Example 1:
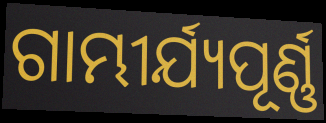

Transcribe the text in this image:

ଗାମ୍ଭୀର୍ଯ୍ୟପୂର୍ଣ୍ଣ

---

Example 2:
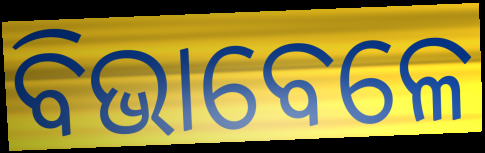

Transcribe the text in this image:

ବିଭାବେଳେ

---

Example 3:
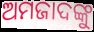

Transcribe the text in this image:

ଅମଜାଦଙ୍କୁ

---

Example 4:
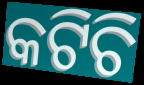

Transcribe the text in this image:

କଟିଚି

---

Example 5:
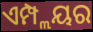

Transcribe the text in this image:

ଏମ୍ପ୍ଲୟର